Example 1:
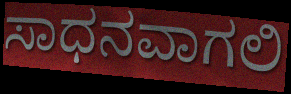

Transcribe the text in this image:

ಸಾಧನವಾಗಲಿ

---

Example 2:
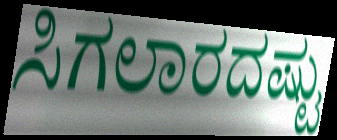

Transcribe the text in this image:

ಸಿಗಲಾರದಷ್ಟು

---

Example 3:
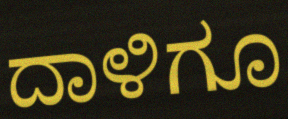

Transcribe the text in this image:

ದಾಳಿಗೂ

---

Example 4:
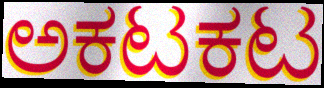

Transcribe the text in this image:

ಅಕಟಕಟ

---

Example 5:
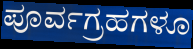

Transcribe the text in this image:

ಪೂರ್ವಗ್ರಹಗಳೂ